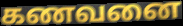
கணவனை